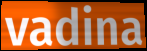
vadina